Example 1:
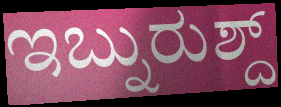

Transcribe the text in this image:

ಇಬ್ನುರುಶ್ದ್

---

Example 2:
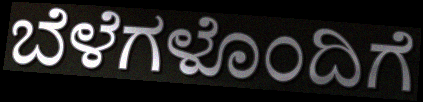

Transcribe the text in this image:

ಬೆಳೆಗಳೊಂದಿಗೆ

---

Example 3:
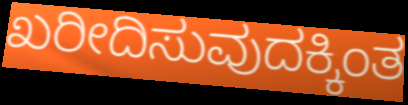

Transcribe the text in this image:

ಖರೀದಿಸುವುದಕ್ಕಿಂತ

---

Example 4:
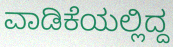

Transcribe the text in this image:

ವಾಡಿಕೆಯಲ್ಲಿದ್ದ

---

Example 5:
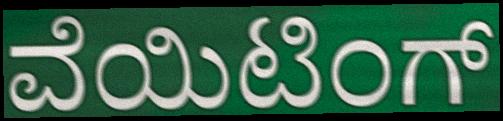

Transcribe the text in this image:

ವೆಯಿಟಿಂಗ್